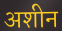
अशीन